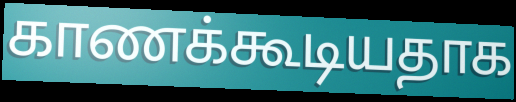
காணக்கூடியதாக